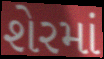
શેરમાં